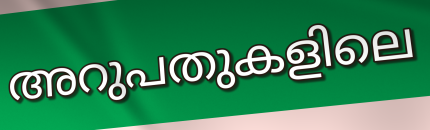
അറുപതുകളിലെ